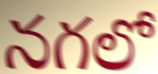
నగలో